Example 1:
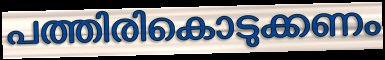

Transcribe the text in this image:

പത്തിരികൊടുക്കണം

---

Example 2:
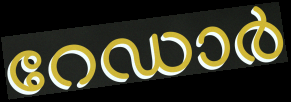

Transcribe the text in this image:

റേഡാർ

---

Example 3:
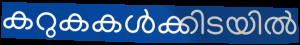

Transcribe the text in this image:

കറുകകൾക്കിടയിൽ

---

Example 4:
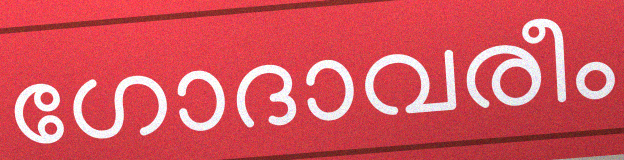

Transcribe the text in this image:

ഗോദാവരീം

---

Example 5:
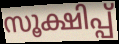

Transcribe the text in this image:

സൂക്ഷിപ്പ്